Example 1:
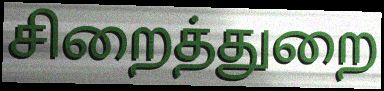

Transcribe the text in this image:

சிறைத்துறை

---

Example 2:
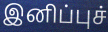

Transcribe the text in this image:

இனிப்புச்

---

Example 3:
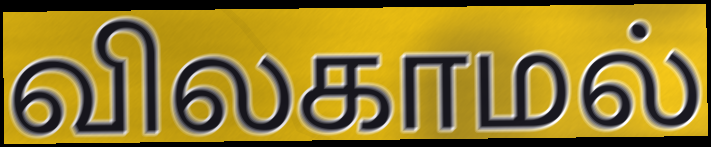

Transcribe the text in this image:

விலகாமல்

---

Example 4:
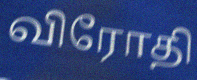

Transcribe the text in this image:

விரோதி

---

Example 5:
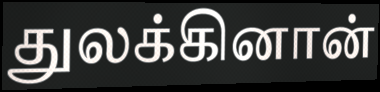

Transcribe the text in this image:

துலக்கினான்